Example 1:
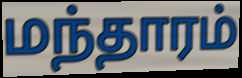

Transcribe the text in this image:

மந்தாரம்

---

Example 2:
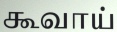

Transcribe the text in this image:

கூவாய்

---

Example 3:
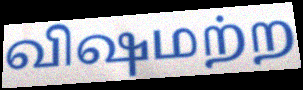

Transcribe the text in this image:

விஷமற்ற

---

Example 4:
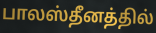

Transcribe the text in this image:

பாலஸ்தீனத்தில்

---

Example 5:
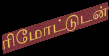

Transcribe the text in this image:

ரிமோட்டுடன்